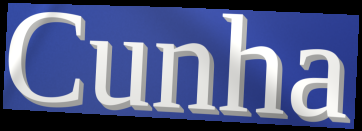
Cunha